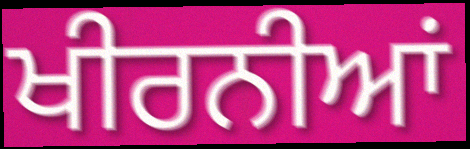
ਖੀਰਨੀਆਂ